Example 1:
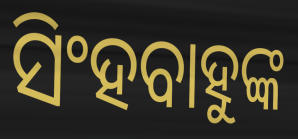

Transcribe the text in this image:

ସିଂହବାହୁଙ୍କ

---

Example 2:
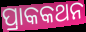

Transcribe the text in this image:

ପ୍ରାକକଥନ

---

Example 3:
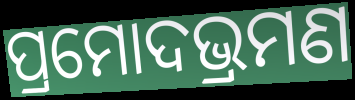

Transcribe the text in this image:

ପ୍ରମୋଦଭ୍ରମଣ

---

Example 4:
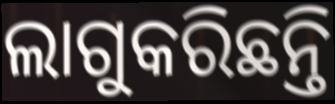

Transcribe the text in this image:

ଲାଗୁକରିଛନ୍ତି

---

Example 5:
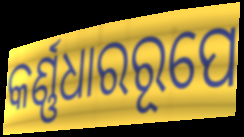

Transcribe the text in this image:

କର୍ଣ୍ଣଧାରରୂପେ